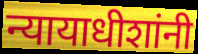
न्यायाधीशांनी